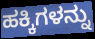
ಹಕ್ಕಿಗಳನ್ನು